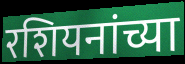
रशियनांच्या